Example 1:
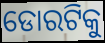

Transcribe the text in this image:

ଡୋରଟିକୁ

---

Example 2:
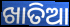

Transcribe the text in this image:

ଖାତିଆ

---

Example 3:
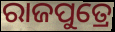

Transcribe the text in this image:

ରାଜପୁତ୍ରେ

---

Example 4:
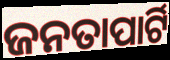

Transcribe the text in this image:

ଜନତାପାର୍ଟି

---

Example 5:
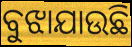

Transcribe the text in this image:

ବୁଝାଯାଉଛି